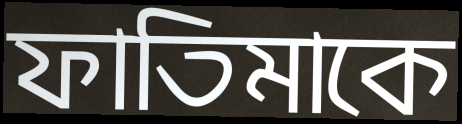
ফাতিমাকে